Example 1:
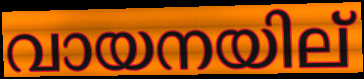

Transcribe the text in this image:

വായനയില്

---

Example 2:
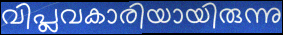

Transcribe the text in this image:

വിപ്ലവകാരിയായിരുന്നു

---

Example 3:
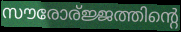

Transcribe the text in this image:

സൗരോര്ജ്ജത്തിന്റെ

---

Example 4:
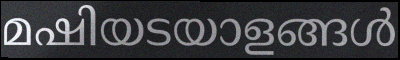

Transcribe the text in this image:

മഷിയടയാളങ്ങൾ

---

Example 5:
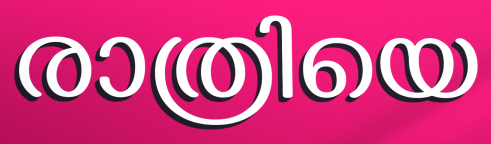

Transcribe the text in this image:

രാത്രിയെ